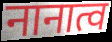
नानात्व